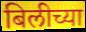
बिलीच्या